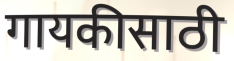
गायकीसाठी